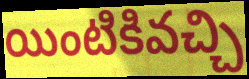
యింటికివచ్చి